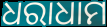
ଧରାଧାମ